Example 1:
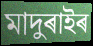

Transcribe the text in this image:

মাদুৰাইৰ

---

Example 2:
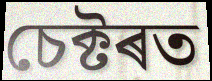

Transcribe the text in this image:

চেক্টৰত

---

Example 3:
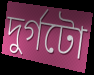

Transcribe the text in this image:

দুৰ্গটো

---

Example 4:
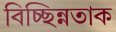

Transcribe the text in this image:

বিচ্ছিন্নতাক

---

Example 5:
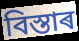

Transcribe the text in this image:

বিস্তাৰ